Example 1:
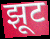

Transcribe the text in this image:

झूट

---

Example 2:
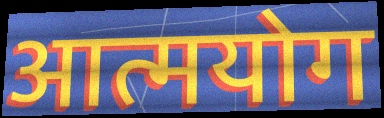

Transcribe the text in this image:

आत्मयोग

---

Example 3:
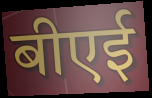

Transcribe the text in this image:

बीएई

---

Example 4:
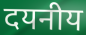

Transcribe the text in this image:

दयनीय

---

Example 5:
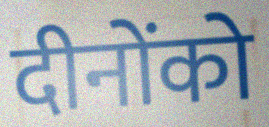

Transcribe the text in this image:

दीनोंको